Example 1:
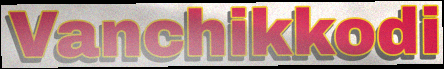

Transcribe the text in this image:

Vanchikkodi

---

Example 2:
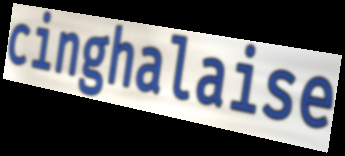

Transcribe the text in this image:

cinghalaise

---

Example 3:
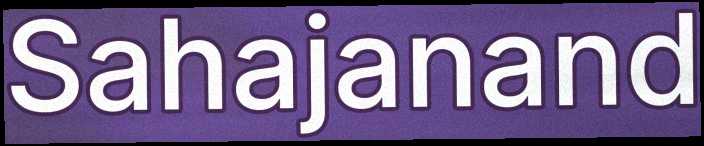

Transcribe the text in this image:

Sahajanand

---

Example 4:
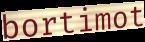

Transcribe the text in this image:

bortimot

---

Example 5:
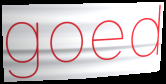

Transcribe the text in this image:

goed